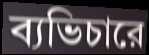
ব্যভিচারে